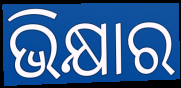
ଭିକ୍ଷାର